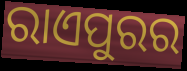
ରାଏପୁରର